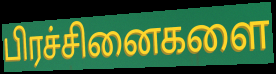
பிரச்சினைகளை